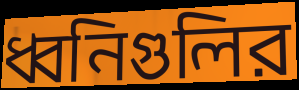
ধ্বনিগুলির